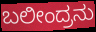
ಬಲೀಂದ್ರನು